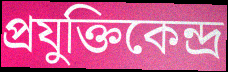
প্রযুক্তিকেন্দ্র